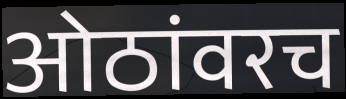
ओठांवरच